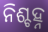
ନିଶ୍ଚହ୍ନ